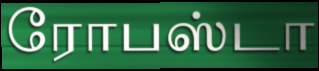
ரோபஸ்டா